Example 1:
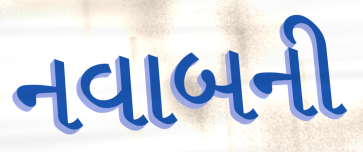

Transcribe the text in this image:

નવાબની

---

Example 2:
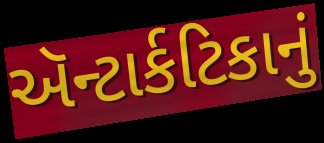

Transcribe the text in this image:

ઍન્ટાર્કટિકાનું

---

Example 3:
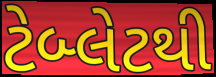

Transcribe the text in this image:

ટેબ્લેટથી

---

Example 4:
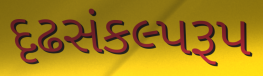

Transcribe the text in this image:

દૃઢસંકલ્પરૂપ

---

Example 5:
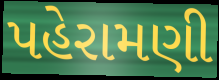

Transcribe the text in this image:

પહેરામણી